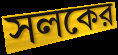
সলকের